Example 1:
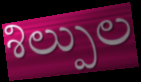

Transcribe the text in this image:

శిల్పుల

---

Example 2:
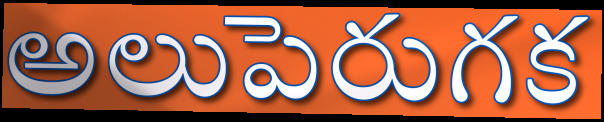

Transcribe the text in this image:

అలుపెరుగక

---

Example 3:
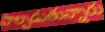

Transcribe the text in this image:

పాల్పడుతున్నారు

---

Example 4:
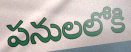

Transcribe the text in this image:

పనులలోకి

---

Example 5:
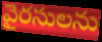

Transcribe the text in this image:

వైరసులను